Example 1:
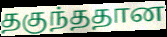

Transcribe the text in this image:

தகுந்ததான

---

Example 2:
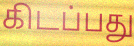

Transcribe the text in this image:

கிடப்பது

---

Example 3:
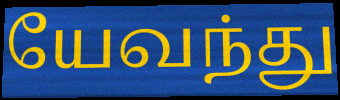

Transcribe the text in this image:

யேவந்து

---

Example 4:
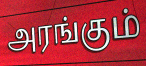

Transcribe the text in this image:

அரங்கும்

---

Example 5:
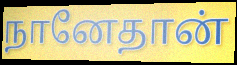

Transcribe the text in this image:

நானேதான்